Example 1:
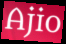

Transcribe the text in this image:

Ajio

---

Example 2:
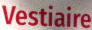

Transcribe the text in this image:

Vestiaire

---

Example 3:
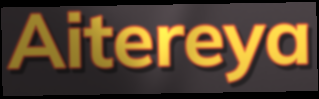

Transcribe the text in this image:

Aitereya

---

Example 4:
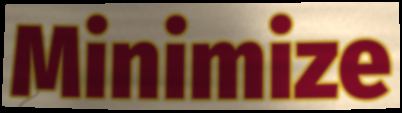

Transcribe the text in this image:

Minimize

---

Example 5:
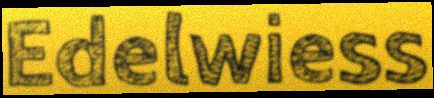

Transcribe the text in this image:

Edelwiess